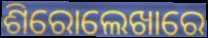
ଶିରୋଲେଖାରେ